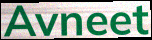
Avneet